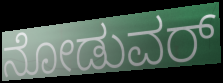
ನೋಡುವರ್